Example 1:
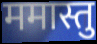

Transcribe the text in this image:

ममास्तु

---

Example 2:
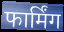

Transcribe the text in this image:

फार्मिंग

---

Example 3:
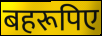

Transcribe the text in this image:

बहरूपिए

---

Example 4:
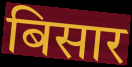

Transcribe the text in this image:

बिसार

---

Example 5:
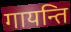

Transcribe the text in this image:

गायन्ति